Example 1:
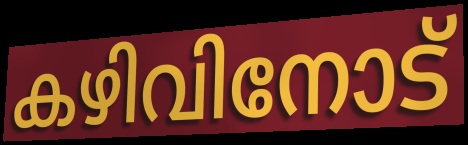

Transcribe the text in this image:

കഴിവിനോട്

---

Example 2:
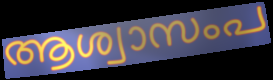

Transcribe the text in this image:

ആശ്വാസംപ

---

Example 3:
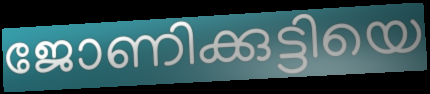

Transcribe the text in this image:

ജോണിക്കുട്ടിയെ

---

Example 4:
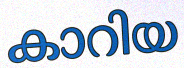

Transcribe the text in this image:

കാറിയ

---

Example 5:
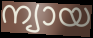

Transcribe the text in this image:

ന്യായ